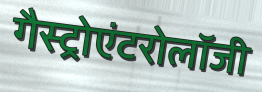
गैस्ट्रोएंटरोलॉजी